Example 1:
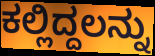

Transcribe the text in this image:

ಕಲ್ಲಿದ್ದಲನ್ನು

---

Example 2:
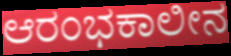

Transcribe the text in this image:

ಆರಂಭಕಾಲೀನ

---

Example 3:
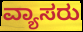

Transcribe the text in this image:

ವ್ಯಾಸರು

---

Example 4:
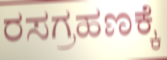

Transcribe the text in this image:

ರಸಗ್ರಹಣಕ್ಕೆ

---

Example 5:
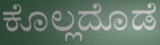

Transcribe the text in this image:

ಕೊಲ್ಲದೊಡೆ